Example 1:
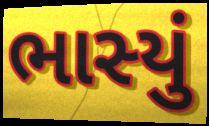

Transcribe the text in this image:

ભાસ્યું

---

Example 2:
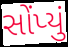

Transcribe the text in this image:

સોંપ્યું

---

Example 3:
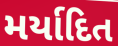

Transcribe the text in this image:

મર્યાદિત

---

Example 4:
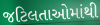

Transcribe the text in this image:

જટિલતાઓમાંથી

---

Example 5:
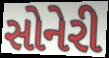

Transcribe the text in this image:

સોનેરી